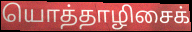
யொத்தாழிசைக்